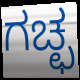
ಗಚ್ಛ